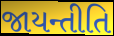
જાયન્તીતિ